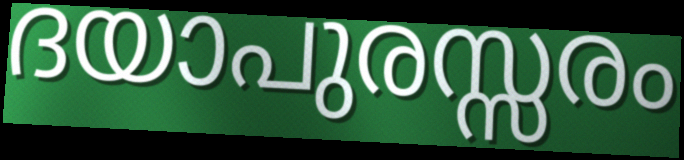
ദയാപുരസ്സരം